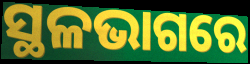
ସ୍ଥଳଭାଗରେ